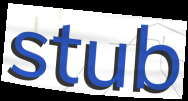
stub